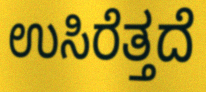
ಉಸಿರೆತ್ತದೆ